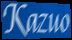
Kazuo